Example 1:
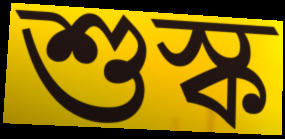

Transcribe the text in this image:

শুস্ক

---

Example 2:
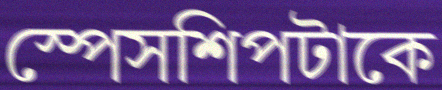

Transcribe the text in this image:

স্পেসশিপটাকে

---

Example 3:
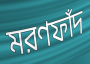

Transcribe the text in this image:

মরণফাঁদ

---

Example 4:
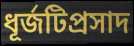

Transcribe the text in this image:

ধূর্জটিপ্রসাদ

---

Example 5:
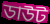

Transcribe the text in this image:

ডাউট